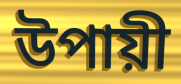
উপায়ী